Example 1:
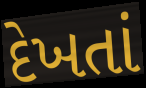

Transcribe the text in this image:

દેખતાં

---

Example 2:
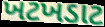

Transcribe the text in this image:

ખટખડાટ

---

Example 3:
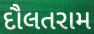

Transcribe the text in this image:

દૌલતરામ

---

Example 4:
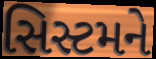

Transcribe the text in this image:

સિસ્ટમને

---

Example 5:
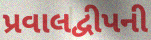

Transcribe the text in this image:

પ્રવાલદ્વીપની